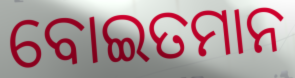
ବୋଇତମାନ